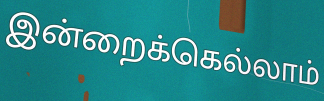
இன்றைக்கெல்லாம்